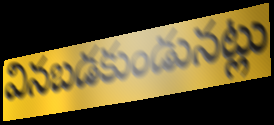
వినబడకుండునట్లు